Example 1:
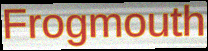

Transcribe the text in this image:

Frogmouth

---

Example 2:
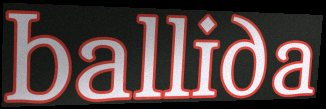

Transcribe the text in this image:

ballida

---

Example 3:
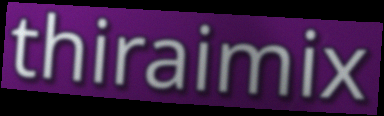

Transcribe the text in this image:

thiraimix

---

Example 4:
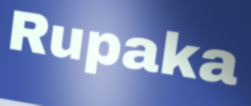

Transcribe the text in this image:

Rupaka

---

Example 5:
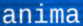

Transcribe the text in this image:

anima